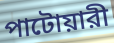
পাটোয়ারী